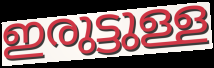
ഇരുട്ടുള്ള